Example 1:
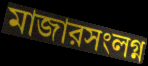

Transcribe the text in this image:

মাজারসংলগ্ন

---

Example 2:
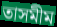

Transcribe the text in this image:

তাসমীম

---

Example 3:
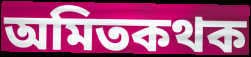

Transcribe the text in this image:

অমিতকথক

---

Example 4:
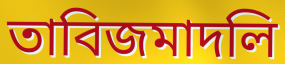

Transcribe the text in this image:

তাবিজমাদলি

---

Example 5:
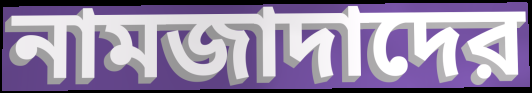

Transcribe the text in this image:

নামজাদাদের